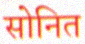
सोनित